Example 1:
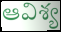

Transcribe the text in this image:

ఆవిశ్య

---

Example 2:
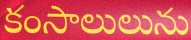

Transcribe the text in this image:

కంసాలులును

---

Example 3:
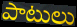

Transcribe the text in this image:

పాటులు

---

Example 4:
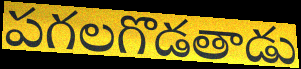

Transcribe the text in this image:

పగలగొడతాడు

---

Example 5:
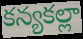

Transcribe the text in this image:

కన్యకల్లా